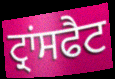
ਟ੍ਰਾਂਸਫੈਟ